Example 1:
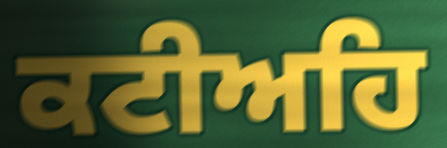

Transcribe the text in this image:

ਕਟੀਅਹਿ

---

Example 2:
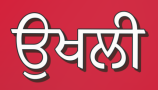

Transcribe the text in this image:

ਉਖਲੀ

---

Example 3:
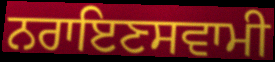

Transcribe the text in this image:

ਨਰਾਇਣਸਵਾਮੀ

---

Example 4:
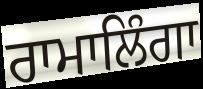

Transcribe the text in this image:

ਰਾਮਾਲਿੰਗਾ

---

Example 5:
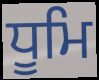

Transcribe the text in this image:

ਧੂਮਿ